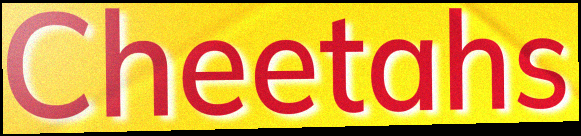
Cheetahs